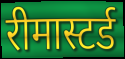
रीमास्टर्ड